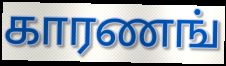
காரணங்